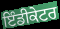
ਇੰਡੀਕੇਟਰ